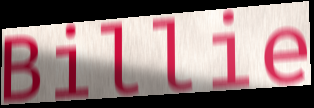
Billie